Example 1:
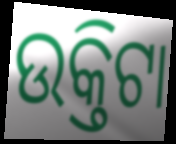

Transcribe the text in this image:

ଉକ୍ତିଟା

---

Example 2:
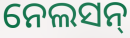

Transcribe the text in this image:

ନେଲସନ୍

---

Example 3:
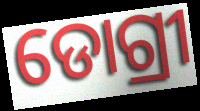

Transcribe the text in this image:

ଡୋଗ୍ରୀ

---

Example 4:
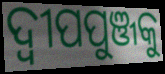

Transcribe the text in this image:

ଦ୍ଵୀପପୁଞ୍ଜକୁ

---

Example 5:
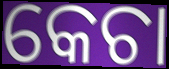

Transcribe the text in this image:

କେଚା